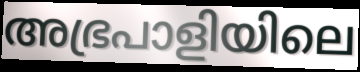
അഭ്രപാളിയിലെ